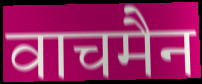
वाचमैन